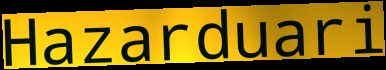
Hazarduari